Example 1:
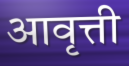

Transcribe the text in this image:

आवृत्ती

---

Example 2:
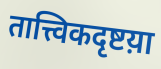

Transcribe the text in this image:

तात्त्विकदृष्टय़ा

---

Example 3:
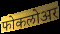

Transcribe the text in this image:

फोकलोअर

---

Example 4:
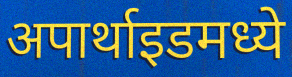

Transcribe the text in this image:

अपार्थाइडमध्ये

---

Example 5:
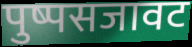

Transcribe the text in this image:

पुष्पसजावट